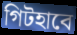
গিটহাবে